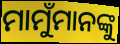
ମାମୁଁମାନଙ୍କୁ